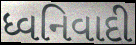
ધ્વનિવાદી